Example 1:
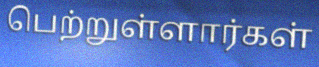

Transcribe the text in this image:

பெற்றுள்ளார்கள்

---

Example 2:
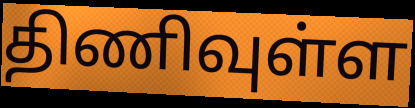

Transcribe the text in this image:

திணிவுள்ள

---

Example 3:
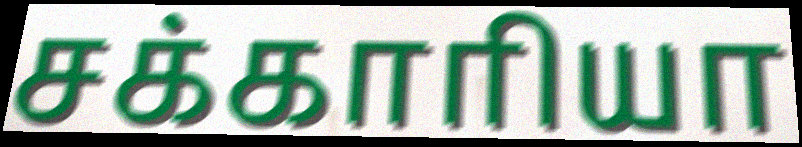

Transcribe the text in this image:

சக்காரியா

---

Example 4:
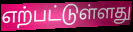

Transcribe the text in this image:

எற்பட்டுள்ளது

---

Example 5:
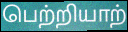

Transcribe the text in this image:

பெற்றியாற்